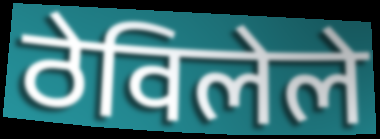
ठेविलेले